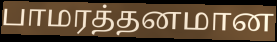
பாமரத்தனமான